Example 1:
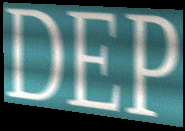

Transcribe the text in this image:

DEP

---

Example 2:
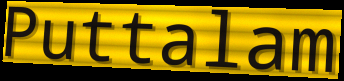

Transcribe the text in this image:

Puttalam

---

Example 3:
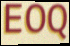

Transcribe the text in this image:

EOQ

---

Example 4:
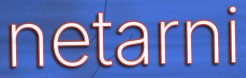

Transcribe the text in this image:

netarni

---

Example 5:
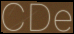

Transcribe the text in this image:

CDe